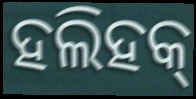
ହଲିହକ୍